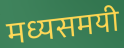
मध्यसमयी